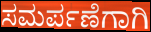
ಸಮರ್ಪಣೆಗಾಗಿ